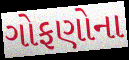
ગોફણોના